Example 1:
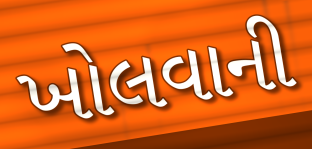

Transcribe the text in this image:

ખોલવાની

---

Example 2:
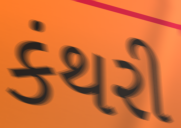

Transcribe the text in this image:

કંથરી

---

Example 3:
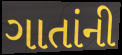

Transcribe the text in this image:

ગાતાંની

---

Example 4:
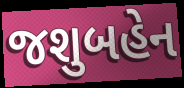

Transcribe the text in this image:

જશુબહેન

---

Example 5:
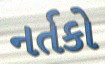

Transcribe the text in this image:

નર્તકો